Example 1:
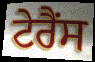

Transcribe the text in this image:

ਟੇਰੈਂਸ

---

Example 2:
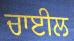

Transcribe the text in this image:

ਚਾਈਲ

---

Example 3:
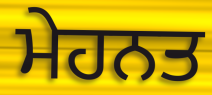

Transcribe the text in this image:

ਮੇਹਨਤ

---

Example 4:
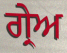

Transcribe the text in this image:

ਗ੍ਰੇਅ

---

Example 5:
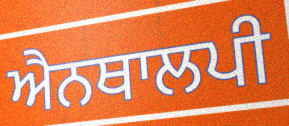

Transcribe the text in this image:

ਐਨਥਾਲਪੀ